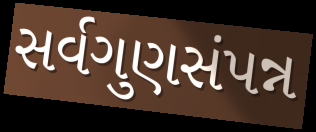
સર્વગુણસંપન્ન